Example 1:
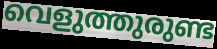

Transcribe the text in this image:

വെളുത്തുരുണ്ട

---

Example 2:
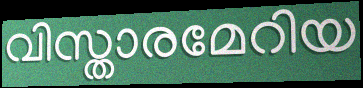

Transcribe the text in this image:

വിസ്താരമേറിയ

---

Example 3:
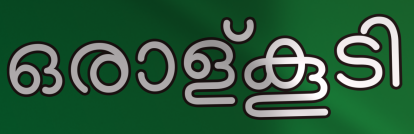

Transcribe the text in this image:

ഒരാള്കൂടി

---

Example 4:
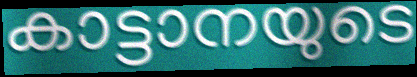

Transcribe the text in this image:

കാട്ടാനയുടെ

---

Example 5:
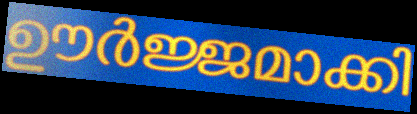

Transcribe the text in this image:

ഊർജ്ജമാക്കി